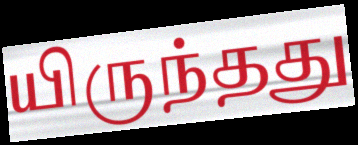
யிருந்தது